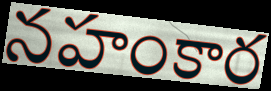
నహంకార